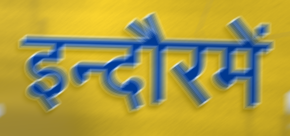
इन्दौरमें